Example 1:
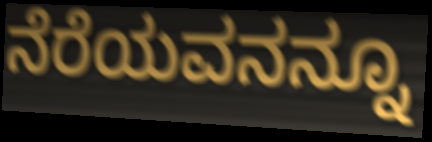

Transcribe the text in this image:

ನೆರೆಯವನನ್ನೂ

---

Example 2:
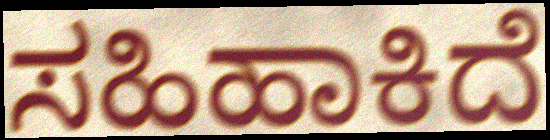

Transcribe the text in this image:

ಸಹಿಹಾಕಿದೆ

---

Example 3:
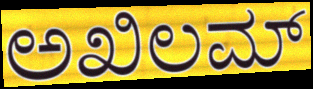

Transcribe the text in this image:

ಅಖಿಲಮ್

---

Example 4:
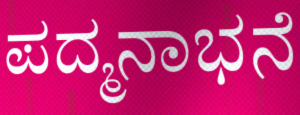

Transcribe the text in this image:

ಪದ್ಮನಾಭನೆ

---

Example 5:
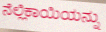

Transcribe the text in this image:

ನೆಲ್ಲಿಕಾಯಿಯನ್ನು